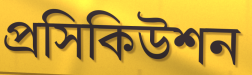
প্রসিকিউশন